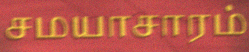
சமயாசாரம்